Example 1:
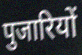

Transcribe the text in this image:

पुजारियों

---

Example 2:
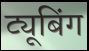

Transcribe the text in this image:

ट्यूबिंग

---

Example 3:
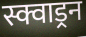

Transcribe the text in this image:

स्क्वाड्रन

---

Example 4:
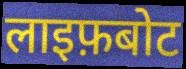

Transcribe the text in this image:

लाइफ़बोट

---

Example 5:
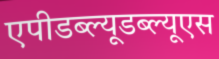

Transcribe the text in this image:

एपीडब्ल्यूडब्ल्यूएस